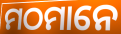
ମଠମାନେ